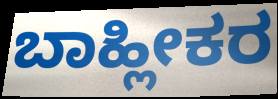
ಬಾಹ್ಲೀಕರ